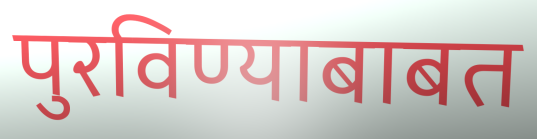
पुरविण्याबाबत